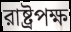
রাষ্ট্রপক্ষ